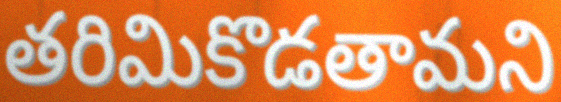
తరిమికొడతామని